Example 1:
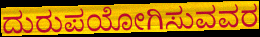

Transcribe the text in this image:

ದುರುಪಯೋಗಿಸುವವರ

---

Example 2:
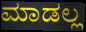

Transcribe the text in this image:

ಮಾಡಲ್ಲ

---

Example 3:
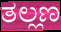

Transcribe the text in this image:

ತಲ್ಲಣ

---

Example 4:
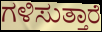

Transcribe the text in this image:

ಗಳಿಸುತ್ತಾರೆ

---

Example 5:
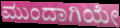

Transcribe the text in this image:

ಮುಂದಾಗಿಯೇ